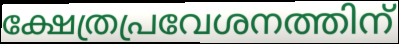
ക്ഷേത്രപ്രവേശനത്തിന്